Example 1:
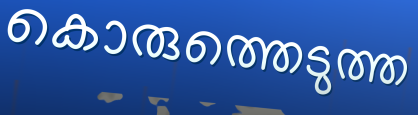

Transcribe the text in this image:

കൊരുത്തെടുത്ത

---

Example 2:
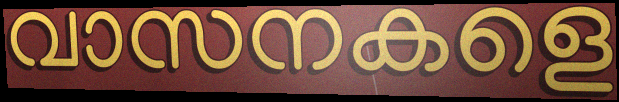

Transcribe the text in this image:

വാസനകളെ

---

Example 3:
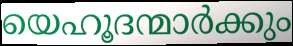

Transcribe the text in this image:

യെഹൂദന്മാർക്കും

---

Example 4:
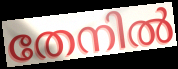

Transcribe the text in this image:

തേനിൽ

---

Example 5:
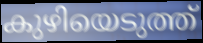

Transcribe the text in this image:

കുഴിയെടുത്ത്